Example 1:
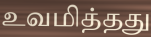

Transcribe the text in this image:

உவமித்தது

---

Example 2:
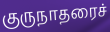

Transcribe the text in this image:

குருநாதரைச்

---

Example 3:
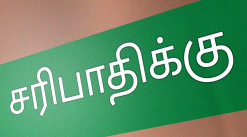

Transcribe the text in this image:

சரிபாதிக்கு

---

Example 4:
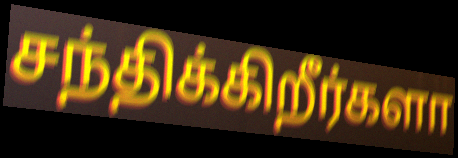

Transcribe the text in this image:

சந்திக்கிறீர்களா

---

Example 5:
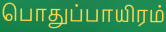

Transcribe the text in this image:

பொதுப்பாயிரம்